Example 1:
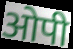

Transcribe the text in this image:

ओपी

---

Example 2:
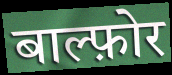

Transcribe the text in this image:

बाल्फ़ोर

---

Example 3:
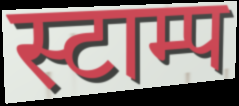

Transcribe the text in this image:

स्टाम्प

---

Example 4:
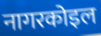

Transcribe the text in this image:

नागरकोइल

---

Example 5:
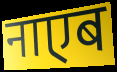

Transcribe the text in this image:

नाएब